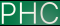
PHC